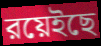
রয়েইছে